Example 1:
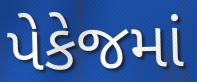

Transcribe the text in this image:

પેકેજમાં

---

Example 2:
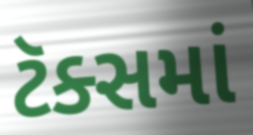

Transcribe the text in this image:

ટૅક્સમાં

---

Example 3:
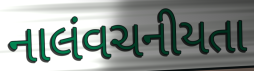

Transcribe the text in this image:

નાલંવચનીયતા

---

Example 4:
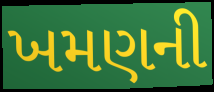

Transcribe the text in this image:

ખમણની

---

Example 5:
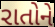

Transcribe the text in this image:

રાતોને